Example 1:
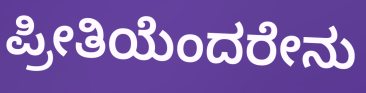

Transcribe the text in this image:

ಪ್ರೀತಿಯೆಂದರೇನು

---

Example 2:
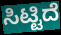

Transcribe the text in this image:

ಸಿಟ್ಟಿದೆ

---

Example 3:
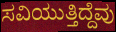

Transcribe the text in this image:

ಸವಿಯುತ್ತಿದ್ದೆವು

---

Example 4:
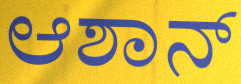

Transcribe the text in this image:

ಆಶಾನ್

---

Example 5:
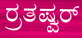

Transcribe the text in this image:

ರ್ರತಷ್ವರ್